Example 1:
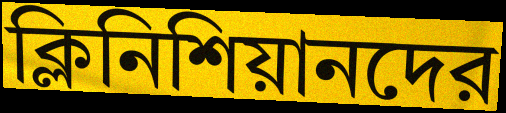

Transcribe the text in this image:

ক্লিনিশিয়ানদের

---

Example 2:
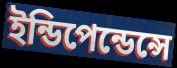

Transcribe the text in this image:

ইন্ডিপেন্ডেন্সে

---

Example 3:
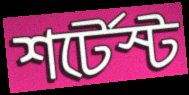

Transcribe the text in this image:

শর্টেস্ট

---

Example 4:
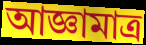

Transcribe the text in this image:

আজ্ঞামাত্র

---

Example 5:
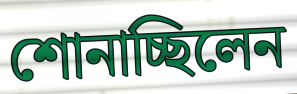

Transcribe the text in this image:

শোনাচ্ছিলেন